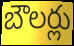
బౌలర్లు